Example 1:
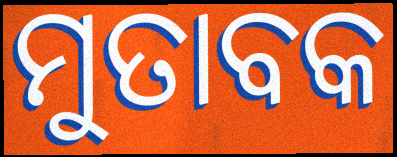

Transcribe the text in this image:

ମୁତାବକ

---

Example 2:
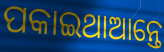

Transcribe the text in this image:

ପକାଇଥାଆନ୍ତେ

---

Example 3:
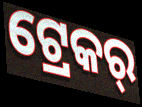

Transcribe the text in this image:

ଟ୍ରେକର୍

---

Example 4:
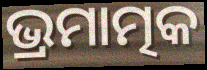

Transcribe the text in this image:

ଭ୍ରମାତ୍ମକ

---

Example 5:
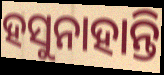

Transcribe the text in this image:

ହସୁନାହାନ୍ତି